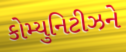
કોમ્યુનિટીઝને